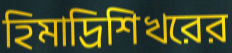
হিমাদ্রিশিখরের